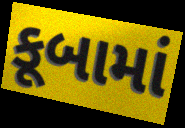
કૂબામાં